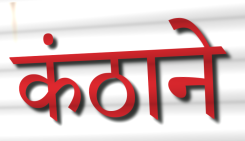
कंठाने